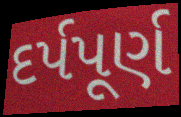
દર્પપૂર્ણ